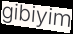
gibiyim